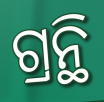
ଗ୍ରନ୍ଥି